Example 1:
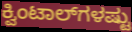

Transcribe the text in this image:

ಕ್ವಿಂಟಾಲ್‌ಗಳಷ್ಟು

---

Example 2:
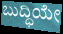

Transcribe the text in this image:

ಬುದ್ಧಿಯೇ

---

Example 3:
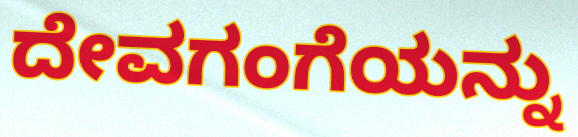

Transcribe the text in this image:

ದೇವಗಂಗೆಯನ್ನು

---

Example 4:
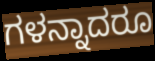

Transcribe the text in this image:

ಗಳನ್ನಾದರೂ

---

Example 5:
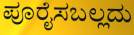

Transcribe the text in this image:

ಪೂರೈಸಬಲ್ಲದು